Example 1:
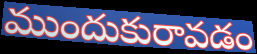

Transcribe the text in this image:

ముందుకురావడం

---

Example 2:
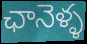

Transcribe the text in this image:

ఛానెళ్ళ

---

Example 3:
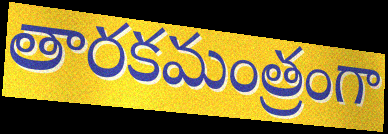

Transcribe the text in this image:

తారకమంత్రంగా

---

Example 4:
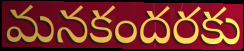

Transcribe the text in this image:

మనకందరకు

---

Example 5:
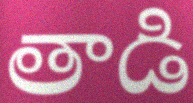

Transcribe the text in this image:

తాడి